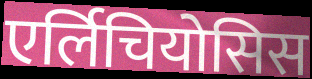
एर्लिचियोसिस